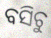
ବସିଚୁ